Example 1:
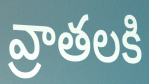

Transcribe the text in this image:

వ్రాతలకి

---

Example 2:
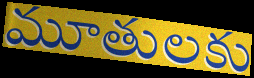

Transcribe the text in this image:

మూతులకు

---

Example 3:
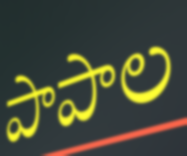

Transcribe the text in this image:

పాపాల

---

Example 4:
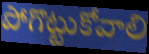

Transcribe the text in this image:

పోగొట్టుకోవాలి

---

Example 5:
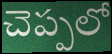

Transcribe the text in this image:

చెప్పలో